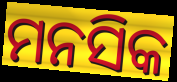
ମନସିକ